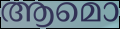
ആമൊ